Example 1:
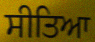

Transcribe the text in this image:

ਸੀਤਿਆ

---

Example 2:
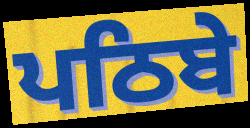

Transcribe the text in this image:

ਪਠਿਬੇ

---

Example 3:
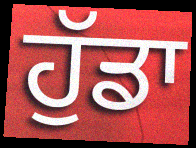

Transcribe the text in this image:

ਹੁੱਡਾ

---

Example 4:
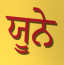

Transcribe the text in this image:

ਯੂਨੇ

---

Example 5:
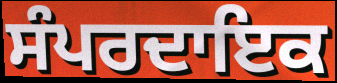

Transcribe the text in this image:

ਸੰਪਰਦਾਇਕ